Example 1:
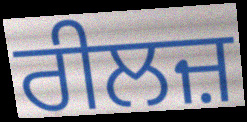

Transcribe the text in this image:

ਰੀਲਜ਼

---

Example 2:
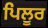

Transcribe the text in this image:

ਪਿਲੂਰ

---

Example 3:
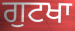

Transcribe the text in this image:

ਗੁਟਖਾ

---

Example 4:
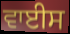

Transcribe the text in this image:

ਵਾਈਸ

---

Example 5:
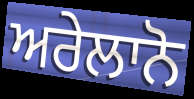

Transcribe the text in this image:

ਅਰੇਲਾਨੋ